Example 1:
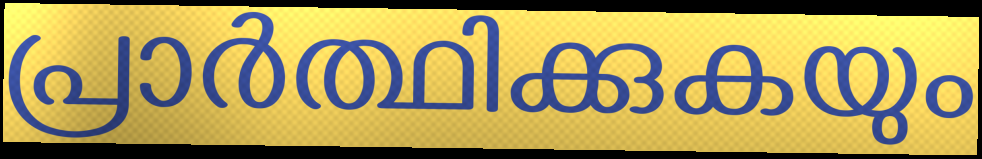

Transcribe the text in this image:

പ്രാർത്ഥിക്കുകയും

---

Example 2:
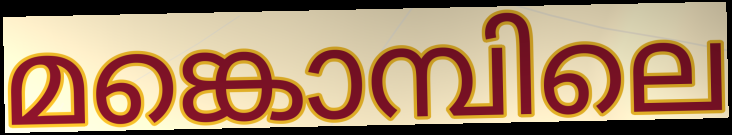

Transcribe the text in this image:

മങ്കൊമ്പിലെ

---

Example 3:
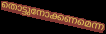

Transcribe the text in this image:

തൊട്ടുനോക്കണമെന്ന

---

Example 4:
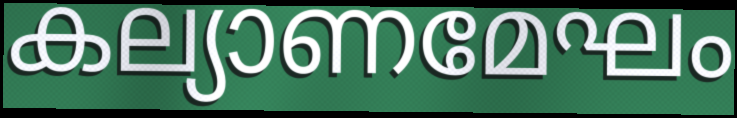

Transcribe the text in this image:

കല്യാണമേഘം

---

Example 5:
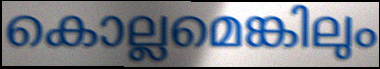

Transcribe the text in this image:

കൊല്ലമെങ്കിലും